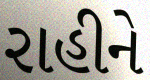
રાહીને